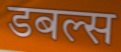
डबल्स